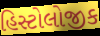
હિસ્ટોલોજીક